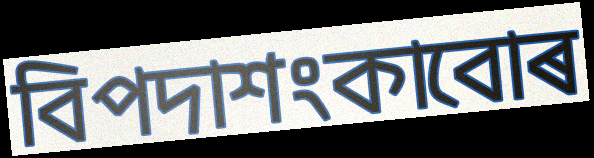
বিপদাশংকাবোৰ